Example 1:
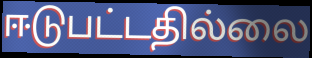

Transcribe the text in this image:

ஈடுபட்டதில்லை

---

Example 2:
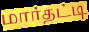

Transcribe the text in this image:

மார்தட்டி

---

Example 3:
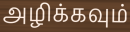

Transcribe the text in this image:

அழிக்கவும்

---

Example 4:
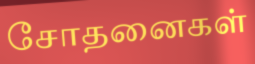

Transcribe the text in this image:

சோதனைகள்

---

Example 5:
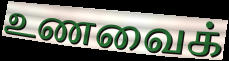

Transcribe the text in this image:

உணவைக்